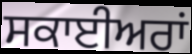
ਸਕਾਈਅਰਾਂ